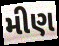
મીણ